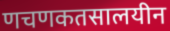
णचणकतसालयीन